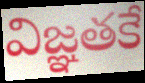
విజ్ఞతకే